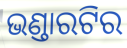
ଭଣ୍ଡାରଟିର